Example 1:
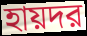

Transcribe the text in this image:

হায়দর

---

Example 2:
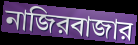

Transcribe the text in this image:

নাজিরবাজার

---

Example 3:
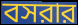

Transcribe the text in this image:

বসরার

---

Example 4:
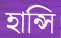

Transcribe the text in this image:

হান্সি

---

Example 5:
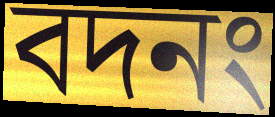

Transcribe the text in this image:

বদনং